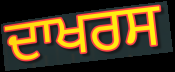
ਦਾਖਰਸ